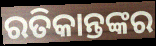
ରତିକାନ୍ତଙ୍କର